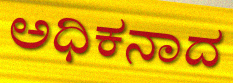
ಅಧಿಕನಾದ